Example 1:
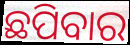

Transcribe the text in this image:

ଛପିବାର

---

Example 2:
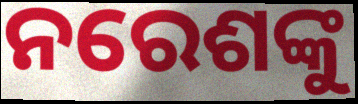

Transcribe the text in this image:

ନରେଶଙ୍କୁ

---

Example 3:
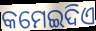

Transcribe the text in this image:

କମେଇଦିଏ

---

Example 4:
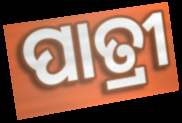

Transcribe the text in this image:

ପାତ୍ରୀ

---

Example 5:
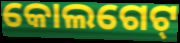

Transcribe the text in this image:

କୋଲଗେଟ୍